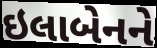
ઇલાબેનને